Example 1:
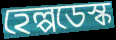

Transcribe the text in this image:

হেল্পডেস্ক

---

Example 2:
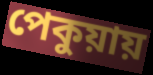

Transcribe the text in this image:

পেকুয়ায়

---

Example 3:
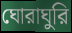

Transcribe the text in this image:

ঘোরাঘুরি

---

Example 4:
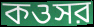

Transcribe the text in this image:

কওসর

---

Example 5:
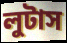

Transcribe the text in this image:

লুটাস